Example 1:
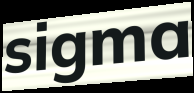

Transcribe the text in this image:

sigma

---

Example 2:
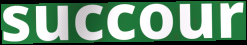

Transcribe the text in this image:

succour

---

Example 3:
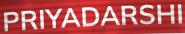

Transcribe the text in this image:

PRIYADARSHI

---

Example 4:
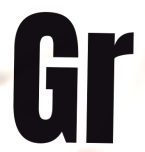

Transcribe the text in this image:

Gr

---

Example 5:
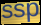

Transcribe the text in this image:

ssp